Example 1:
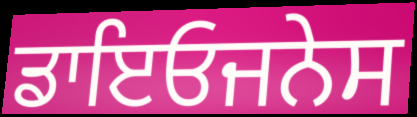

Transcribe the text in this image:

ਡਾਇਓਜਨੇਸ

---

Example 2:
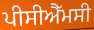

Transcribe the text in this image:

ਪੀਸੀਐੱਮਸੀ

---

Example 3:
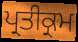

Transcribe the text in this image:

ਪ੍ਰਤੀਕ੍ਰਮ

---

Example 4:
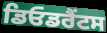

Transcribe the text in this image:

ਡਿਓਡਰੈਂਟਸ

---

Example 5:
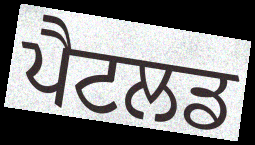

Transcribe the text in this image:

ਪੈਟਲਡ